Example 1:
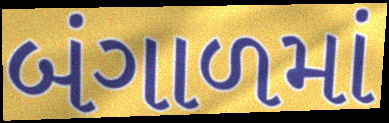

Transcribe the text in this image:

બંગાળમાં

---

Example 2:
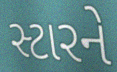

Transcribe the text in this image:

સ્ટારને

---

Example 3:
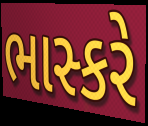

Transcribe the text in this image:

ભાસ્કરે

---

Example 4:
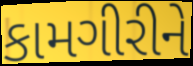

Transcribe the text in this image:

કામગીરીને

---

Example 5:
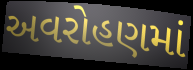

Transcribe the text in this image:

અવરોહણમાં